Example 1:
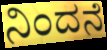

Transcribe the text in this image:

ನಿಂದನೆ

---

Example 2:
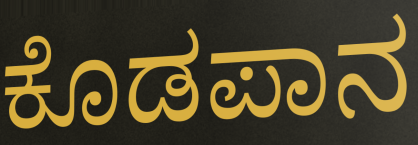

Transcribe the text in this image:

ಕೊಡಪಾನ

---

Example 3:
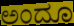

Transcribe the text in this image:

ಅಂದೂ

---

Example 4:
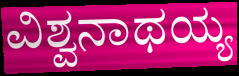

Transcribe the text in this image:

ವಿಶ್ವನಾಥಯ್ಯ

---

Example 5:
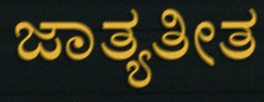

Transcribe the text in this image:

ಜಾತ್ಯತೀತ